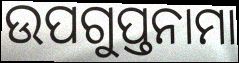
ଉପଗୁପ୍ତନାମା